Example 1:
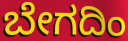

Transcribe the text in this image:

ಬೇಗದಿಂ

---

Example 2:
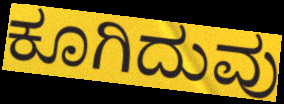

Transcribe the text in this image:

ಕೂಗಿದುವು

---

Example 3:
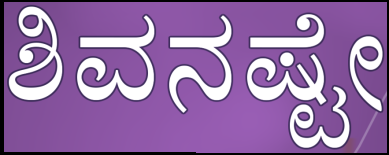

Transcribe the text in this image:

ಶಿವನಷ್ಟೇ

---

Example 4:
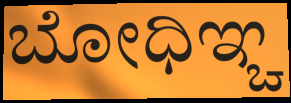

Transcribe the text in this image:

ಬೋಧಿಞ್ಚ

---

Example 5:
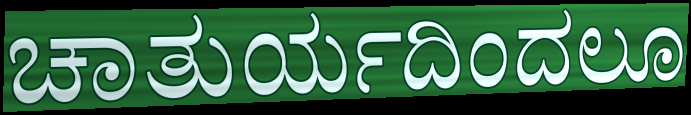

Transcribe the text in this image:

ಚಾತುರ್ಯದಿಂದಲೂ